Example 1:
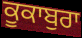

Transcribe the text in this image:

ਕੂਕਾਬੁਰਾ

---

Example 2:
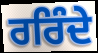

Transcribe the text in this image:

ਰਰਿੰਦੇ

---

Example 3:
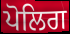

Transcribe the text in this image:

ਪੋਲਿਗ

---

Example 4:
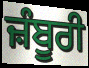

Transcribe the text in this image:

ਜ਼ੰਬੂਰੀ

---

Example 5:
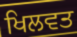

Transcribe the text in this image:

ਖਿਲਵਤ